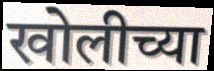
खोलीच्या